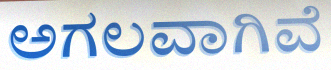
ಅಗಲವಾಗಿವೆ